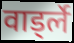
वार्ड्ले